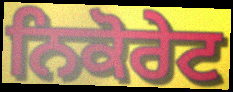
ਨਿਕੋਰੇਟ